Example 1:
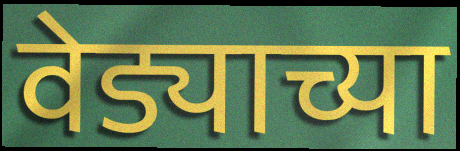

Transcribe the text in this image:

वेड्याच्या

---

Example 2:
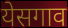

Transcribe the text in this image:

येसगाव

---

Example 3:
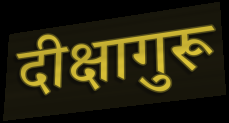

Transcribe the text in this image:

दीक्षागुरू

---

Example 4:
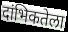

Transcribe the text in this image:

दांभिकतेला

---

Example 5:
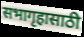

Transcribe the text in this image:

सभागृहासाठी